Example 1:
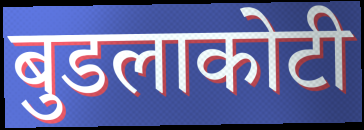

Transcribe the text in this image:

बुडलाकोटी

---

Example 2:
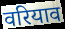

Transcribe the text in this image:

वरियाव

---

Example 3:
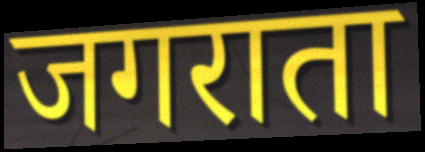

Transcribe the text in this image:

जगराता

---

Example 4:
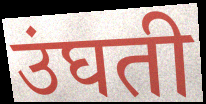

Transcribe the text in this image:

उंघती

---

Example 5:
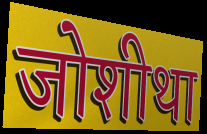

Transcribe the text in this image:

जोशीथा